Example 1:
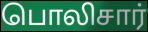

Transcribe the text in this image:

பொலிசார்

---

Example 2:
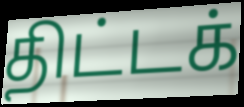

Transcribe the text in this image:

திட்டக்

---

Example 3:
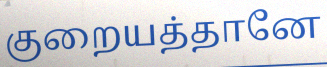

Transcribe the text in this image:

குறையத்தானே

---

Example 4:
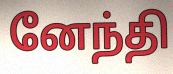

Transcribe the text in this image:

னேந்தி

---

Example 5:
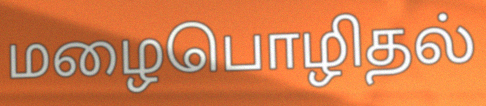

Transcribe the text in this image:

மழைபொழிதல்